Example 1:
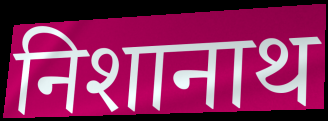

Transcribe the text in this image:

निशानाथ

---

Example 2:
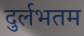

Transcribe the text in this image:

दुर्लभतम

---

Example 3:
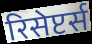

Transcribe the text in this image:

रिसेप्टर्स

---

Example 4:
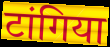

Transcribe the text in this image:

टांगिया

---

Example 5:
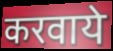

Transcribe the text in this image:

करवाये